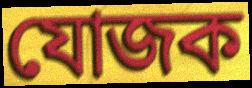
যোজক